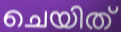
ചെയിത്